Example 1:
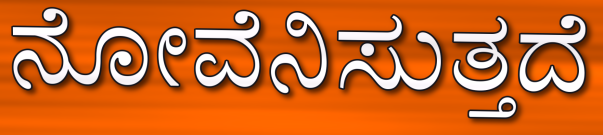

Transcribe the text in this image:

ನೋವೆನಿಸುತ್ತದೆ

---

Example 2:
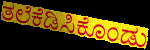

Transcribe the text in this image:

ತಲೆಕೆಡಿಸಿಕೊಂಡು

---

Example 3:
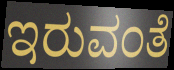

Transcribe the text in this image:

ಇರುವಂತೆ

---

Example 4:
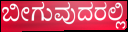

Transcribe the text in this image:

ಬೀಗುವುದರಲ್ಲಿ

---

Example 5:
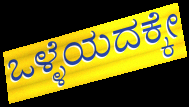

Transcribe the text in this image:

ಒಳ್ಳೆಯದಕ್ಕೇ